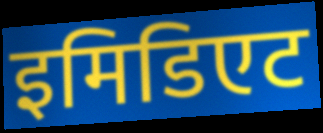
इमिडिएट